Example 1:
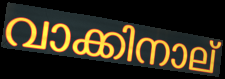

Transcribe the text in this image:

വാക്കിനാല്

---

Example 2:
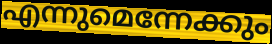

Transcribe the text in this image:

എന്നുമെന്നേക്കും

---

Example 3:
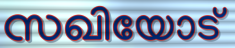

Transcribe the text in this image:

സഖിയോട്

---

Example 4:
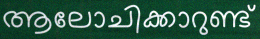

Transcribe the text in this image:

ആലോചിക്കാറുണ്ട്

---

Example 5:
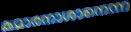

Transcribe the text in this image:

കുമാരനാശാനെന്ന